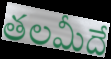
తలమీదే